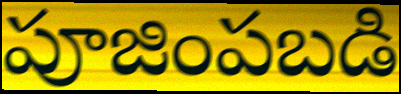
పూజింపబడి